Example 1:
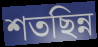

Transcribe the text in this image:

শতছিন্ন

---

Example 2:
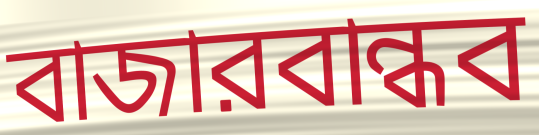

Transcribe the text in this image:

বাজারবান্ধব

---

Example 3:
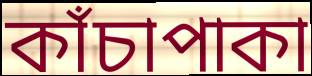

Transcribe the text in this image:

কাঁচাপাকা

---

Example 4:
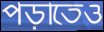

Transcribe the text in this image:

পড়াতেও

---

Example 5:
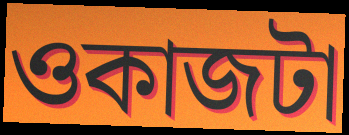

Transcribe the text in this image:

ওকাজটা